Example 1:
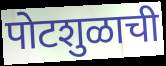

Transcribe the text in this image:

पोटशुळाची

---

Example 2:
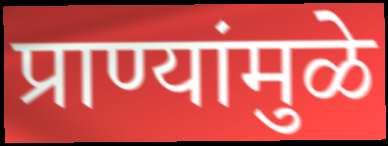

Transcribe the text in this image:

प्राण्यांमुळे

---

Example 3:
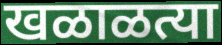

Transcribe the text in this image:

खळाळत्या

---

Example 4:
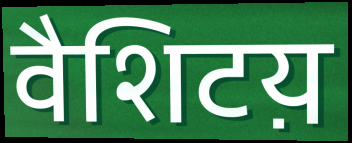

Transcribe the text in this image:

वैशिटय़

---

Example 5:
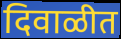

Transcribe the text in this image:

दिवाळीत